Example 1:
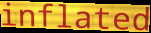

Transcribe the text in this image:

inflated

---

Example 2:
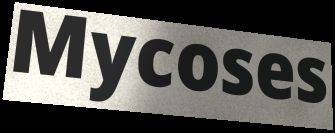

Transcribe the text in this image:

Mycoses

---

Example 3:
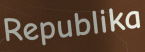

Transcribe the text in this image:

Republika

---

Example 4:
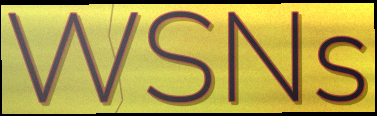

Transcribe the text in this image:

WSNs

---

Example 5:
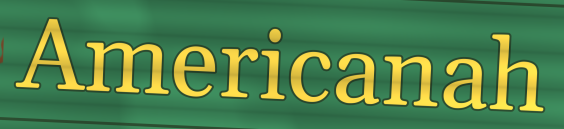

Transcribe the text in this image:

Americanah